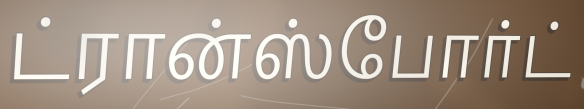
ட்ரான்ஸ்போர்ட்